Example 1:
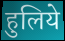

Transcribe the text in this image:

हुलिये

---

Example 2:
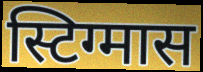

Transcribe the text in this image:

स्टिग्मास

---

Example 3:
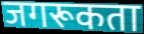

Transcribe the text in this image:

जगरूकता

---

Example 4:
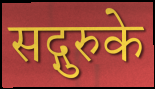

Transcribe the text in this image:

सद्गुरुके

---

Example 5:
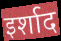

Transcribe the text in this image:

इर्शाद